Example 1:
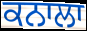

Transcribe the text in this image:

ਕਨਾਲਾ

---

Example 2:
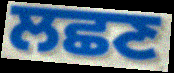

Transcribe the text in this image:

ਲਛਣ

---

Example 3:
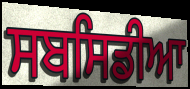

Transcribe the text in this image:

ਸਬਸਿਡੀਆ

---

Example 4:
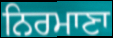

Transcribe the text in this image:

ਨਿਰਮਾਣਾ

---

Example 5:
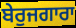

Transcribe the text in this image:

ਬੇਰੁਜਗਾਰਾ